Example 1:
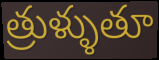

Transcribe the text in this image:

త్రుళ్ళుతూ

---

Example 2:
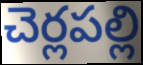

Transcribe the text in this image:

చెర్లపల్లి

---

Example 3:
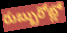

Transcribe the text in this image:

రుబ్బురోట్లో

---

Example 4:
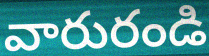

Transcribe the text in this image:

వారురండి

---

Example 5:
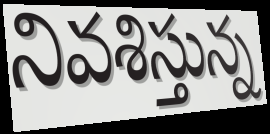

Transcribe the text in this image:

నివశిస్తున్న